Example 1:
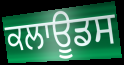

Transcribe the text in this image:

ਕਲਾਊਡਸ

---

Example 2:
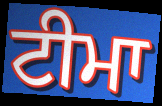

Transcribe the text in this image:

ਟੀਮਾ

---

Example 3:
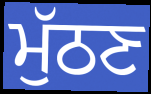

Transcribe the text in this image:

ਮੁੱਠਣ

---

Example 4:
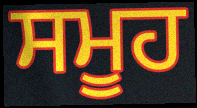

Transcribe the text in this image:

ਸਮੂਹ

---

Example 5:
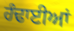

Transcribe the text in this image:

ਹੰਢਾਈਆਂ